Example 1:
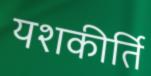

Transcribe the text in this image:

यशकीर्ति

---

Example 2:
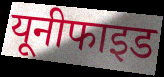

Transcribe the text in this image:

यूनीफाइड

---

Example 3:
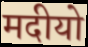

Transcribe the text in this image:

मदीयो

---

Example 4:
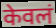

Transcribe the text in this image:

केवलं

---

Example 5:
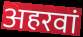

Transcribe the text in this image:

अहरवां